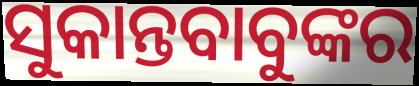
ସୁକାନ୍ତବାବୁଙ୍କର